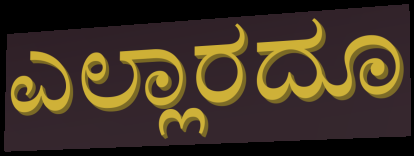
ಎಲ್ಲಾರದೂ